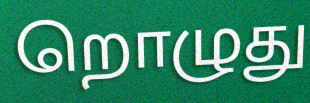
றொழுது